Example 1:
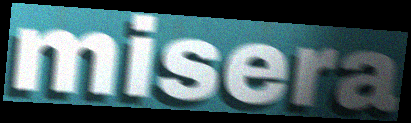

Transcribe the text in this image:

misera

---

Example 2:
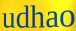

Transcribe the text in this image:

udhao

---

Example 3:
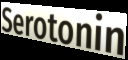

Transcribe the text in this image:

Serotonin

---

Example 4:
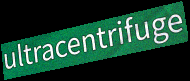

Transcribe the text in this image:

ultracentrifuge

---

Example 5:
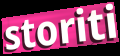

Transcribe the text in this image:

storiti